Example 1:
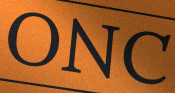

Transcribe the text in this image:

ONC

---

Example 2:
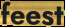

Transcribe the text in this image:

feest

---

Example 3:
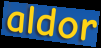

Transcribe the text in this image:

aldor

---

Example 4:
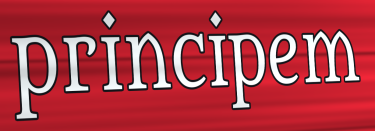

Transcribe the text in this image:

principem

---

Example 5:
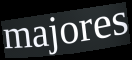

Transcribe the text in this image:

majores